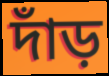
দাঁড়